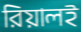
রিয়ালই